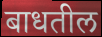
बाधतील